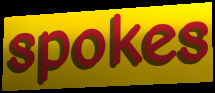
spokes